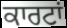
ਕਾਰਟਾਂ